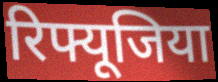
रिफ्यूजिया